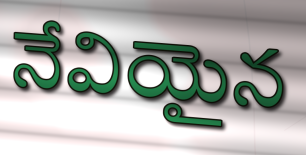
నేవియైన